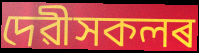
দেৱীসকলৰ